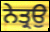
ਨੇਤ੍ਰਉ